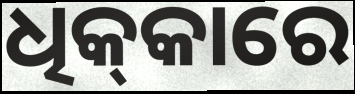
ଧିକ୍‌କାରେ